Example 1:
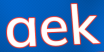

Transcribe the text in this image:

aek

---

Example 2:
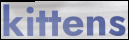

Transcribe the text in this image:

kittens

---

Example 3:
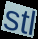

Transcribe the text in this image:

stl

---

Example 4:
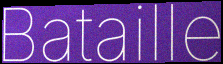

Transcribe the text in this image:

Bataille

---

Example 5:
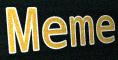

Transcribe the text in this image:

Meme